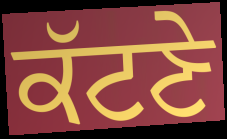
ਕੱਟਣੇ